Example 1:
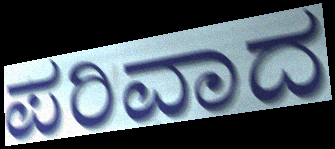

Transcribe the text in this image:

ಪರಿವಾದ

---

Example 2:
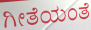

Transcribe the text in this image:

ಗೀತೆಯಂತೆ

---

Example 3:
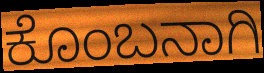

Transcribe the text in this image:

ಕೊಂಬನಾಗಿ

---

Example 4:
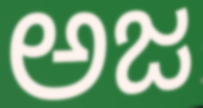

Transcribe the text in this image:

ಅಜ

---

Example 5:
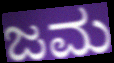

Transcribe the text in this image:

ಜಮ